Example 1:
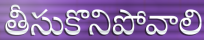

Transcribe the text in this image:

తీసుకొనిపోవాలి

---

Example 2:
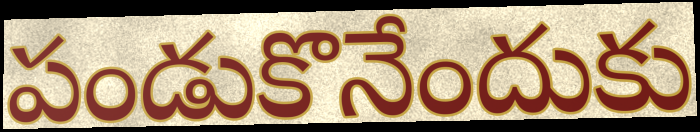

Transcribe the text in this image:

పండుకొనేందుకు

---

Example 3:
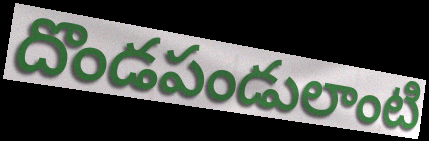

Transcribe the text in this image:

దొండపండులాంటి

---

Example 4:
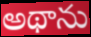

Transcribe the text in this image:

అథాను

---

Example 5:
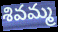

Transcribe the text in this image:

శివమ్మ